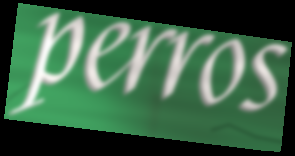
perros